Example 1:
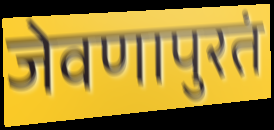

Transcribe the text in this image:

जेवणापुरतं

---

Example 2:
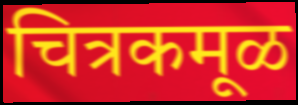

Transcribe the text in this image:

चित्रकमूळ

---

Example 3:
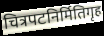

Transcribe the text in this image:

चित्रपटनिर्मितिगृह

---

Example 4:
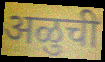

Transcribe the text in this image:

अळुची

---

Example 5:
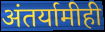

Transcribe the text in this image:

अंतर्यामीही